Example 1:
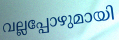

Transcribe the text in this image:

വല്ലപ്പോഴുമായി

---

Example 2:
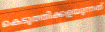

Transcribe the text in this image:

കെടുത്തിക്കളയുന്നത്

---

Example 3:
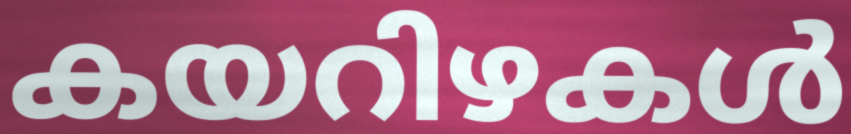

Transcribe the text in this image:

കയറിഴകൾ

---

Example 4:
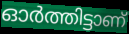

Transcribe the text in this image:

ഓർത്തിട്ടാണ്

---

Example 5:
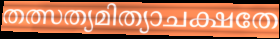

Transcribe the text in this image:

തത്സത്യമിത്യാചക്ഷതേ